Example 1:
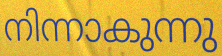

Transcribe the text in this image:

നിന്നാകുന്നു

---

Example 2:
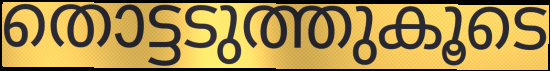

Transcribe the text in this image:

തൊട്ടടുത്തുകൂടെ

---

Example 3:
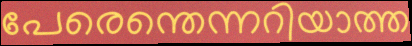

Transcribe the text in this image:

പേരെന്തെന്നറിയാത്ത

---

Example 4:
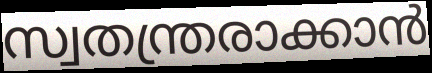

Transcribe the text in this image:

സ്വതന്ത്രരാക്കാൻ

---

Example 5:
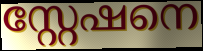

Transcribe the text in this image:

സ്റ്റേഷനെ